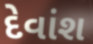
દેવાંશ